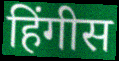
हिंगीस